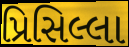
પ્રિસિલ્લા